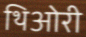
थिओरी